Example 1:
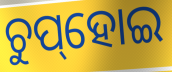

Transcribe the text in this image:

ଚୁପ୍‌ହୋଇ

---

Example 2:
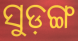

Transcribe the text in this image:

ସୁଡ଼ଙ୍ଗ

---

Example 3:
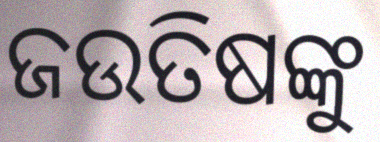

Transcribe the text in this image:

ଜଉତିଷଙ୍କୁ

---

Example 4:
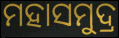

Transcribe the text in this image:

ମହାସମୁଦ୍ର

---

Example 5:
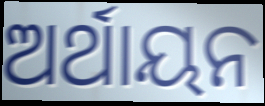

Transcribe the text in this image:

ଅର୍ଥାୟନ